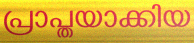
പ്രാപ്തയാക്കിയ